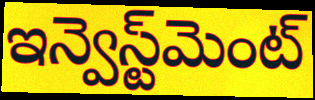
ఇన్వెస్ట్‌మెంట్